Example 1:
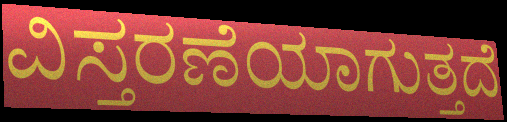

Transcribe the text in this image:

ವಿಸ್ತರಣೆಯಾಗುತ್ತದೆ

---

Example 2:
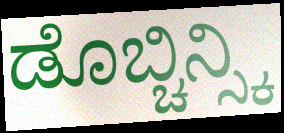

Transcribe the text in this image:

ಡೊಬ್ಚಿನ್ಸ್ಕಿ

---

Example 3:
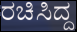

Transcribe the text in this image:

ರಚಿಸಿದ್ದ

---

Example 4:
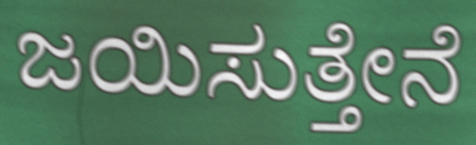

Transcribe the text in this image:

ಜಯಿಸುತ್ತೇನೆ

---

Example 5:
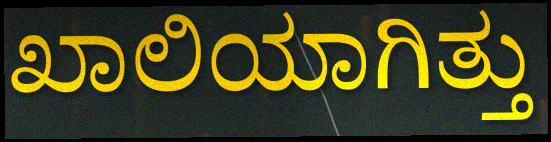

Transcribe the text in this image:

ಖಾಲಿಯಾಗಿತ್ತು